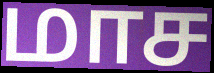
மாச